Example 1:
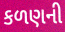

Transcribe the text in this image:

કળણની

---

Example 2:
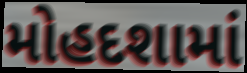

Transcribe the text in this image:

મોહદશામાં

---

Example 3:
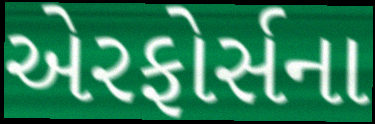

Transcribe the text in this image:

એરફોર્સના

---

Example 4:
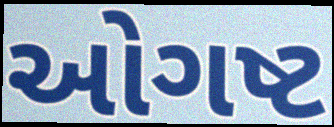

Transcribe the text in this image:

ઓગષ્ટ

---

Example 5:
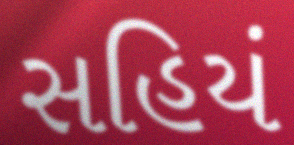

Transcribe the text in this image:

સહિયં